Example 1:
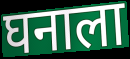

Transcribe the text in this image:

घनाला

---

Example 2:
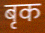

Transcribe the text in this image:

बृक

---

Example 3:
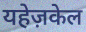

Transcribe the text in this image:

यहेज़केल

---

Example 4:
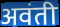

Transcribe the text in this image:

अवंती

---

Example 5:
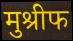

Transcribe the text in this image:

मुश्रीफ